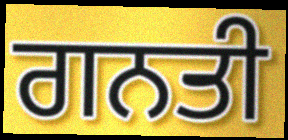
ਗਨਤੀ